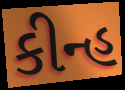
કીન્હ